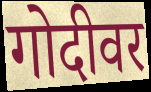
गोदीवर